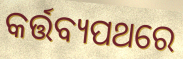
କର୍ତ୍ତବ୍ୟପଥରେ